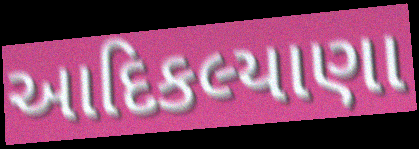
આદિકલ્યાણા